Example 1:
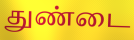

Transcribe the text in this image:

துண்டை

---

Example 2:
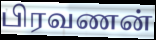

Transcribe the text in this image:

பிரவணன்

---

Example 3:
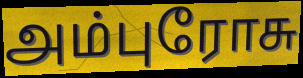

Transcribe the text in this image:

அம்புரோசு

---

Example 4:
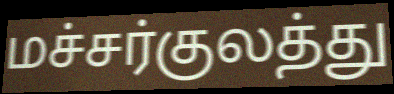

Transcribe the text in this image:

மச்சர்குலத்து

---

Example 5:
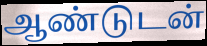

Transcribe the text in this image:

ஆண்டுடன்